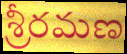
శ్రీరమణ